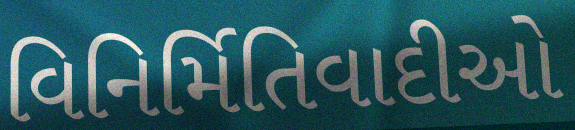
વિનિર્મિતિવાદીઓ